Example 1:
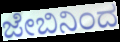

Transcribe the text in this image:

ಜೇಬಿನಿಂದ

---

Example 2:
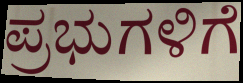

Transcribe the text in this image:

ಪ್ರಭುಗಳಿಗೆ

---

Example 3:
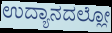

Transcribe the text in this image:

ಉದ್ಯಾನದಲ್ಲೋ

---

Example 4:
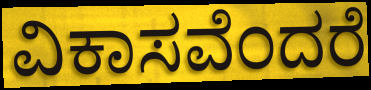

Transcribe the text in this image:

ವಿಕಾಸವೆಂದರೆ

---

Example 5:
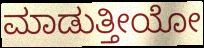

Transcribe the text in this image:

ಮಾಡುತ್ತೀಯೋ